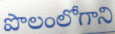
పొలంలోగాని